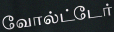
வோல்ட்டேர்